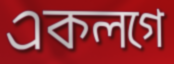
একলগে